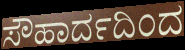
ಸೌಹಾರ್ದದಿಂದ